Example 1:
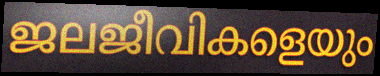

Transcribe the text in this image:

ജലജീവികളെയും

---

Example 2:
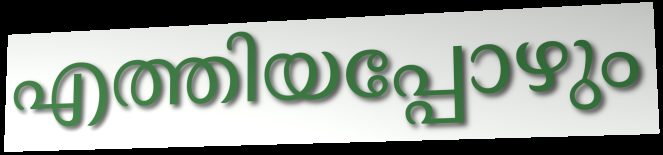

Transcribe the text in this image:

എത്തിയപ്പോഴും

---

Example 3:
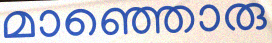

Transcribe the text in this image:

മാഞ്ഞൊരു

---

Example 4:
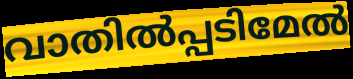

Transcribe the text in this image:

വാതിൽപ്പടിമേൽ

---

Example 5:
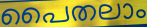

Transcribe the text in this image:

പൈതലാം